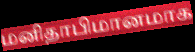
மனிதாபிமானமாக